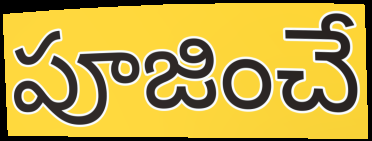
పూజించే